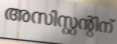
അസിസ്റ്റന്റിന്